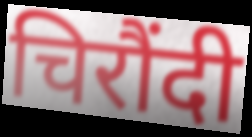
चिरौंदी